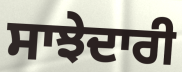
ਸਾਝੇਦਾਰੀ